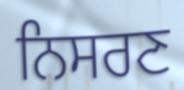
ਨਿਸਰਣ